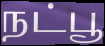
நட்பூ